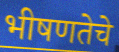
भीषणतेचे